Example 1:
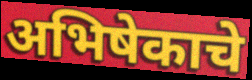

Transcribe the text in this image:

अभिषेकाचे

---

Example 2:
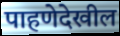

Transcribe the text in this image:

पाहणेदेखील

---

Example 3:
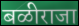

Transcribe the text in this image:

बळीराजा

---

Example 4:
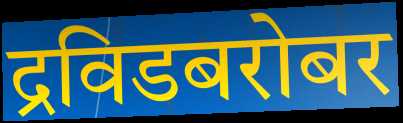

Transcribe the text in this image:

द्रविडबरोबर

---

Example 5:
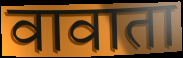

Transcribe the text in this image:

वावाता